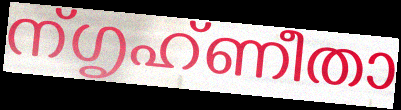
ന്ഗൃഹ്ണീതാ